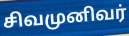
சிவமுனிவர்